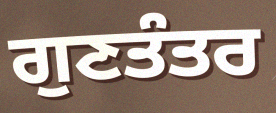
ਗੁਣਤੰਤਰ